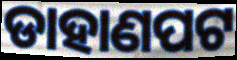
ଡାହାଣପଟ